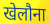
खेलौना